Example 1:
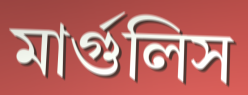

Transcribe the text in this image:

মার্গুলিস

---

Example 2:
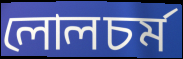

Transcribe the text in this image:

লোলচর্ম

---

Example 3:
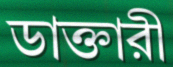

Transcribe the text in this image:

ডাক্তারী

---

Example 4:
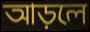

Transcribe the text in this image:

আড়লে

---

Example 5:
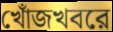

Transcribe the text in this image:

খোঁজখবরে